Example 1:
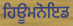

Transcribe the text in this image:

ਹਿਊਮਨੋਇਡ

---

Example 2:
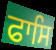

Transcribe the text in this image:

ਫਾਸਿ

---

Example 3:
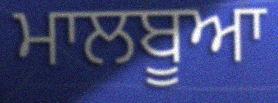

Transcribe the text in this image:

ਮਾਲਬੂਆ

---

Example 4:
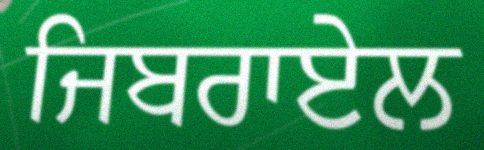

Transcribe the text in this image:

ਜਿਬਰਾਏਲ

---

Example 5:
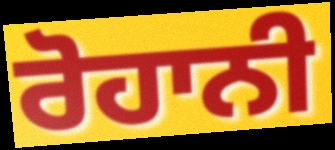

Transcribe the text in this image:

ਰੋਹਾਨੀ